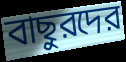
বাছুরদের